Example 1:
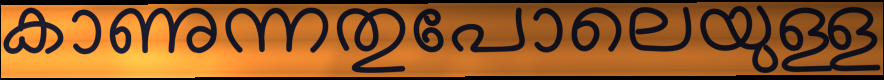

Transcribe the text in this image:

കാണുന്നതുപോലെയുള്ള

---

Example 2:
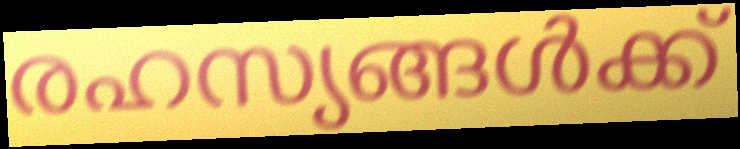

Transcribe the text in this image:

രഹസ്യങ്ങൾക്ക്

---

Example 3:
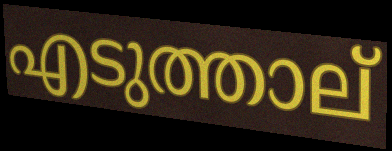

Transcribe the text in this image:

എടുത്താല്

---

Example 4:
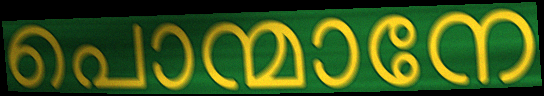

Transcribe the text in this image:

പൊന്മാനേ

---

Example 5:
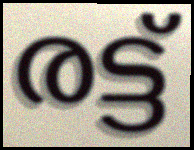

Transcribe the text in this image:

രട്ട്